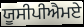
ਯੂਸੀਪੀਐਮਏ